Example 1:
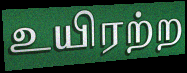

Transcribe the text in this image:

உயிரற்ற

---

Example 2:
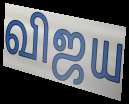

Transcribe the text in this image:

விஜய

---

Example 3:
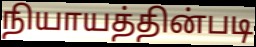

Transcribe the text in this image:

நியாயத்தின்படி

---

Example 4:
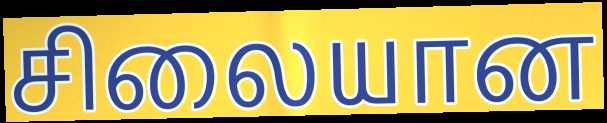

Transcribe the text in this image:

சிலையான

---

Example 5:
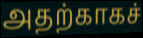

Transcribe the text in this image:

அதற்காகச்